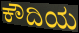
ಕೌದಿಯ